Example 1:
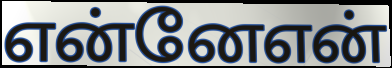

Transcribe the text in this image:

என்னேஎன்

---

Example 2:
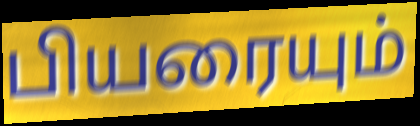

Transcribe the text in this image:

பியரையும்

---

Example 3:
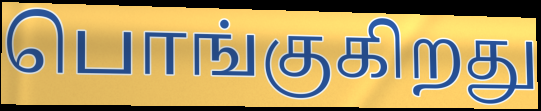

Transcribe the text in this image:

பொங்குகிறது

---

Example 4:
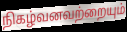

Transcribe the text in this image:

நிகழ்வனவற்றையும்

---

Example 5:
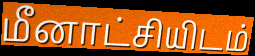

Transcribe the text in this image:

மீனாட்சியிடம்